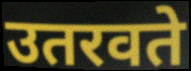
उतरवते